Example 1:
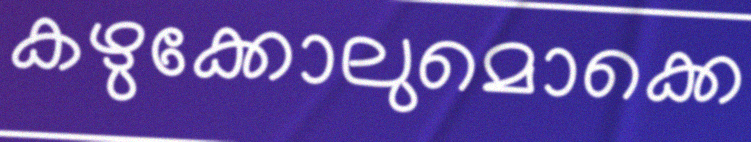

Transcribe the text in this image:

കഴുക്കോലുമൊക്കെ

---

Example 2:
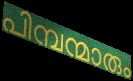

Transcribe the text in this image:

പിമ്പന്മാരും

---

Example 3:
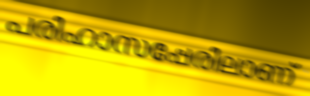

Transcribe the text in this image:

പരിഹാസപ്പേരിലാണ്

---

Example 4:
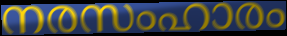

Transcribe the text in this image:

നരസംഹാരം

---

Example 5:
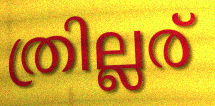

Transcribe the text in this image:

ത്രില്ലര്